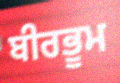
ਬੀਰਭੂਮ